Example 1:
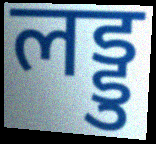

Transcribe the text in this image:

लड्डु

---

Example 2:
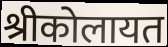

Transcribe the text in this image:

श्रीकोलायत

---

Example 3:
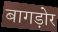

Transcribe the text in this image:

बागड़ोर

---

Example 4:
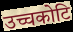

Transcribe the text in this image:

उच्चकोटि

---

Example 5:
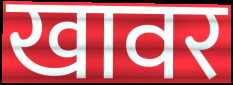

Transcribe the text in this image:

खावर